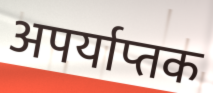
अपर्याप्तक